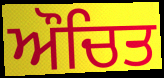
ਔਚਿਤ